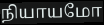
நியாயமோ